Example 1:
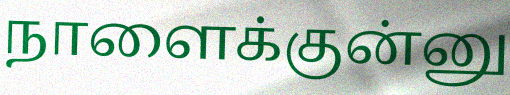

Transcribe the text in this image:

நாளைக்குன்னு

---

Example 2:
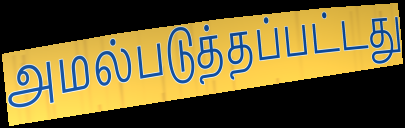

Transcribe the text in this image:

அமல்படுத்தப்பட்டது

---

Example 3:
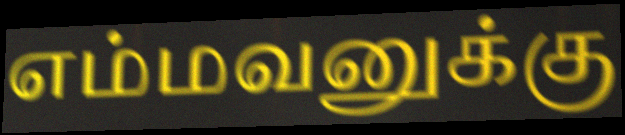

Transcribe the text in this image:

எம்மவனுக்கு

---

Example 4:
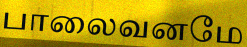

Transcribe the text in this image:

பாலைவனமே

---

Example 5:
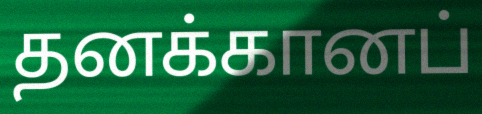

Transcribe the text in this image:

தனக்கானப்